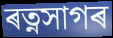
ৰত্নসাগৰ